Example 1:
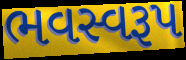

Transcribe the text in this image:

ભવસ્વરૂપ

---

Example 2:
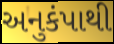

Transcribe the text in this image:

અનુકંપાથી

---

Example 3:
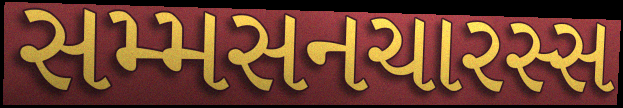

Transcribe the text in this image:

સમ્મસનચારસ્સ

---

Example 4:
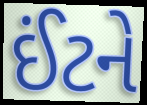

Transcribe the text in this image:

ઈંટને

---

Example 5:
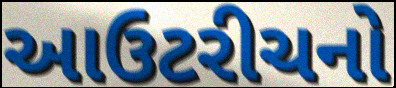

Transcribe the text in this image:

આઉટરીચનો